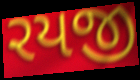
રયજી